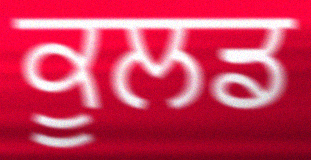
ਕੂਲਡ